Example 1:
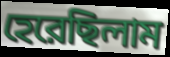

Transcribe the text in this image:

হেরেছিলাম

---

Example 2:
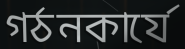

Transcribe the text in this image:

গঠনকার্যে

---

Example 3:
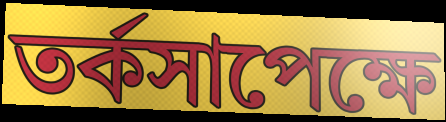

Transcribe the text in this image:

তর্কসাপেক্ষে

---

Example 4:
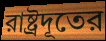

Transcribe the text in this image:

রাষ্ট্রদূতের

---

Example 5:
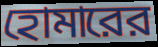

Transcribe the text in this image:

হোমারের